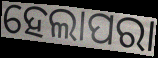
ହେଲାପରା